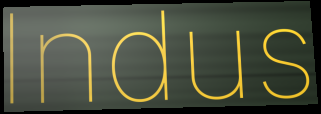
Indus